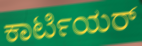
ಕಾರ್ಟಿಯರ್